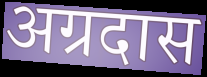
अग्रदास